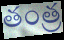
తంత్ర